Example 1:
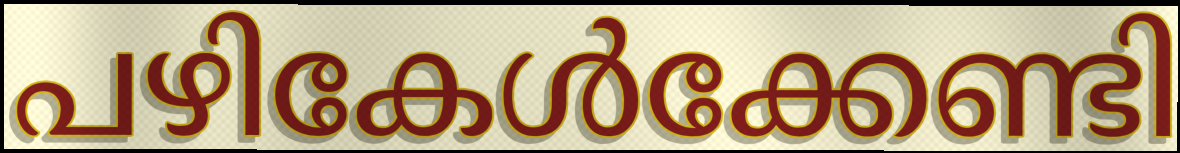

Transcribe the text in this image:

പഴികേൾക്കേണ്ടി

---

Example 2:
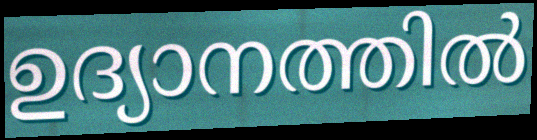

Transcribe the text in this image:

ഉദ്യാനത്തിൽ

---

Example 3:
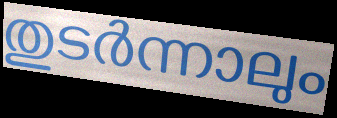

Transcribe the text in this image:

തുടർന്നാലും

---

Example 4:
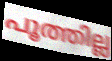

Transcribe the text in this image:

പൂത്തില്ല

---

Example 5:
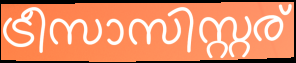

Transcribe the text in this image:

ട്രീസാസിസ്റ്റര്